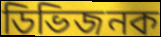
ডিভিজনক